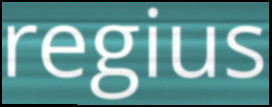
regius